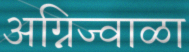
अग्निज्वाळा